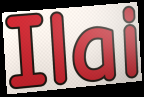
Ilai